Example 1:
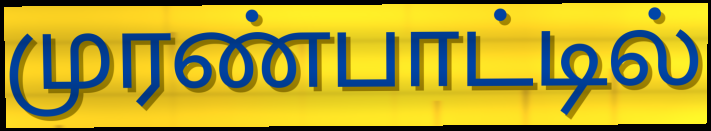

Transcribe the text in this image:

முரண்பாட்டில்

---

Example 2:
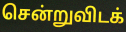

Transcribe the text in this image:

சென்றுவிடக்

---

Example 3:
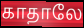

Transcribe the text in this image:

காதாலே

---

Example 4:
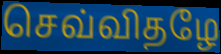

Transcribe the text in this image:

செவ்விதழே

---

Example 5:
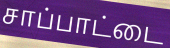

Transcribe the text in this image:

சாப்பாட்டை